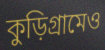
কুড়িগ্রামেও